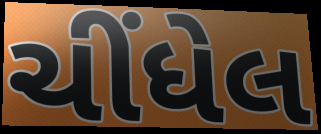
ચીંધેલ